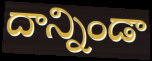
దాన్నిండా